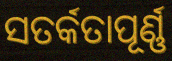
ସତର୍କତାପୂର୍ଣ୍ଣ